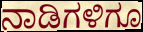
ನಾಡಿಗಳಿಗೂ